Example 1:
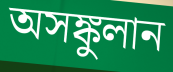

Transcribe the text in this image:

অসঙ্কুলান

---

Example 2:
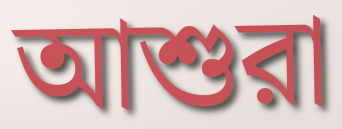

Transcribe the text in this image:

আশুরা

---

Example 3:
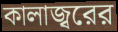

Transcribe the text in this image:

কালাজ্বরের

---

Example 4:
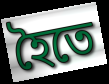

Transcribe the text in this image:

হৈতে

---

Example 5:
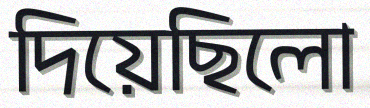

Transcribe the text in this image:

দিয়েছিলো